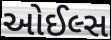
ઓઈલ્સ